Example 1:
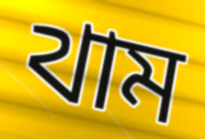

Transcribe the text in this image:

থাম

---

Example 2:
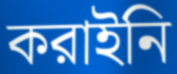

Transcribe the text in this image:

করাইনি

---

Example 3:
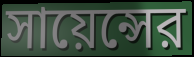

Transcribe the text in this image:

সায়েন্সের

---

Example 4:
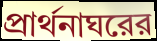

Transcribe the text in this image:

প্রার্থনাঘরের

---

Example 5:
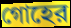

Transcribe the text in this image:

গোহের